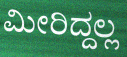
ಮೀರಿದ್ದಲ್ಲ